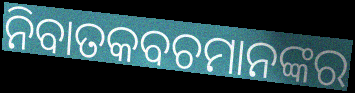
ନିବାତକବଚମାନଙ୍କର